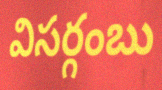
విసర్గంబు